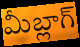
మీబ్లాగ్